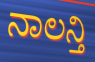
ನಾಲನ್ತಿ